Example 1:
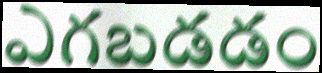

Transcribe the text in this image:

ఎగబడడం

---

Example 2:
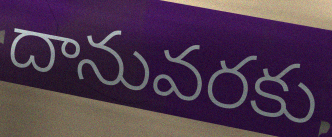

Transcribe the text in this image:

దానువరకు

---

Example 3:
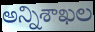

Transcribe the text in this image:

అన్నిశాఖల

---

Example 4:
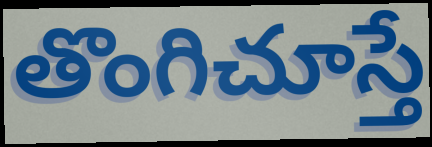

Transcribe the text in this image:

తొంగిచూస్తే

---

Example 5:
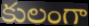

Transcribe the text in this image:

కులంగా